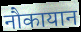
नौकायान